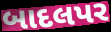
બાદલપર